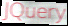
JQuery